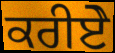
ਕਰੀਏੇ